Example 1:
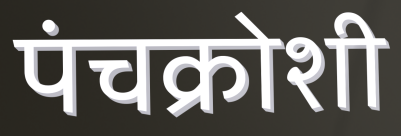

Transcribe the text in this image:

पंचक्रोशी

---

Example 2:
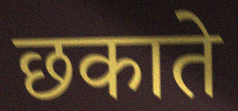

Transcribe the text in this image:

छकाते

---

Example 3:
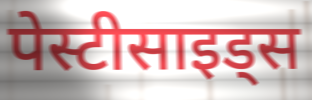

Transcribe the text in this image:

पेस्टीसाइड्स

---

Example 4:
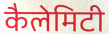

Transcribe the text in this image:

कैलेमिटी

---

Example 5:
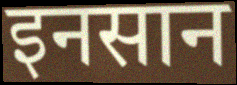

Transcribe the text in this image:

इनसान